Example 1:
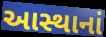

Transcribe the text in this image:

આસ્થાનાં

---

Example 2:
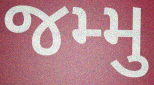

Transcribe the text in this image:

જમ્મુ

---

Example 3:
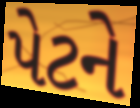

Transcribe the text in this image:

પેટને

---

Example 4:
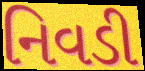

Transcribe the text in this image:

નિવડી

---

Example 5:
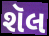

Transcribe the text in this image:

શૅલ